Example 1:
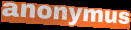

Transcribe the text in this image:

anonymus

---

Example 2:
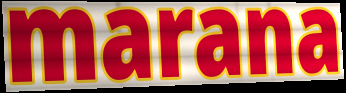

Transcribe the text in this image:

marana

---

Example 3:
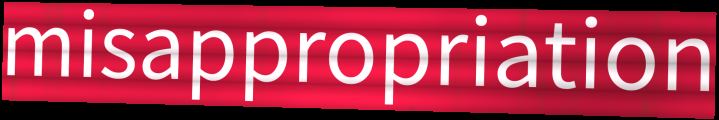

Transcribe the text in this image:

misappropriation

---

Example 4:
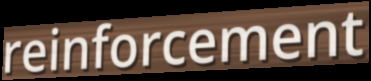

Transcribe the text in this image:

reinforcement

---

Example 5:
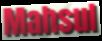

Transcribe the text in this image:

Mahsul